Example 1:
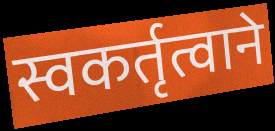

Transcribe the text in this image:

स्वकर्तृत्वाने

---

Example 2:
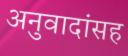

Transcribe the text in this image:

अनुवादांसह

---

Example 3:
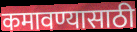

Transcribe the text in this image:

कमावण्यासाठी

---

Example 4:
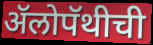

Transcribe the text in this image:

ॲलोपॅथीची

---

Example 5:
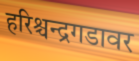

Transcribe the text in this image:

हरिश्चन्द्रगडावर